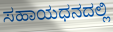
ಸಹಾಯಧನದಲ್ಲಿ